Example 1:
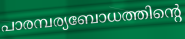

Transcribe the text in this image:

പാരമ്പര്യബോധത്തിന്റെ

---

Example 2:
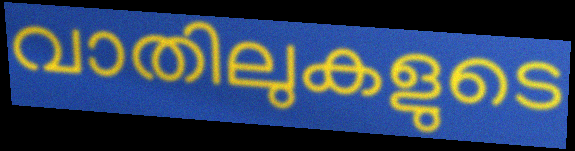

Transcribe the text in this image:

വാതിലുകളുടെ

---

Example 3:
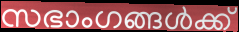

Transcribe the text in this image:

സഭാംഗങ്ങൾക്ക്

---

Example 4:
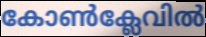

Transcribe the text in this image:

കോൺക്ലേവിൽ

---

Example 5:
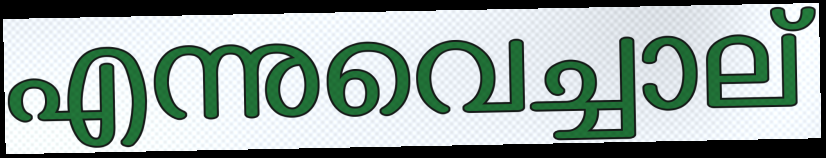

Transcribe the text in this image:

എന്നുവെച്ചാല്